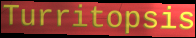
Turritopsis